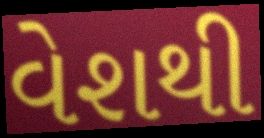
વેશથી